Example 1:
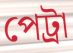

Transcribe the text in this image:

পেট্রা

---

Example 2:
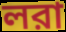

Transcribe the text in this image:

লরা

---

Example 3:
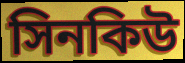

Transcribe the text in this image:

সিনকিউ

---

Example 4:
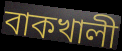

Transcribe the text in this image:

বাকখালী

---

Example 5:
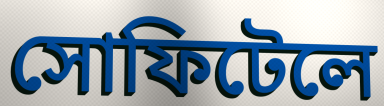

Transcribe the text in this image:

সোফিটেলে